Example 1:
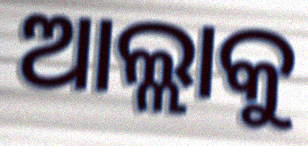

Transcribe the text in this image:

ଆଲ୍ଲାକୁ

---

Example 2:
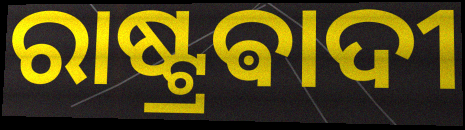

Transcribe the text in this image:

ରାଷ୍ଟ୍ରଵାଦୀ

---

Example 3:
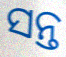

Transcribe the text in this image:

ସନ୍ତ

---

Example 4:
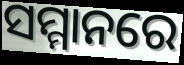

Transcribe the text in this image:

ସମ୍ମାନରେ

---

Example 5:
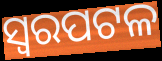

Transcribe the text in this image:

ସ୍ୱରପଟଳ